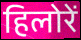
हिलोरें